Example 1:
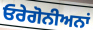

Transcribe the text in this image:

ਓਰੇਗੋਨੀਅਨਾਂ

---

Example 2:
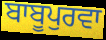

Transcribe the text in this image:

ਬਾਬੂਪੁਰਵਾ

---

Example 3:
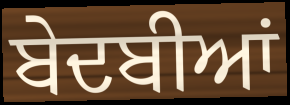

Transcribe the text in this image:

ਬੇਦਬੀਆਂ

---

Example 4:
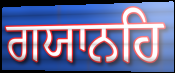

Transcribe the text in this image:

ਗਯਾਨਹਿ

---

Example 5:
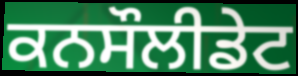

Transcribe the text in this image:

ਕਨਸੌਲੀਡੇਟ